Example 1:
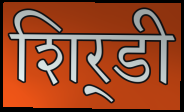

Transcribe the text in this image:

शिर्डी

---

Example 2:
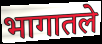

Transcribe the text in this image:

भागातले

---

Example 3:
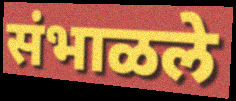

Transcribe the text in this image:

संभाळले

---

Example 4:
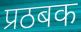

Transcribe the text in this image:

प्रठबक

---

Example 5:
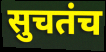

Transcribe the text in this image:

सुचतंच